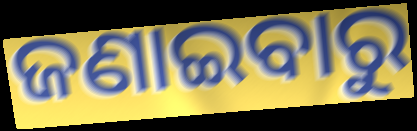
ଜଣାଇବାରୁ